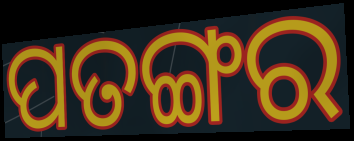
ପତଙ୍ଗର